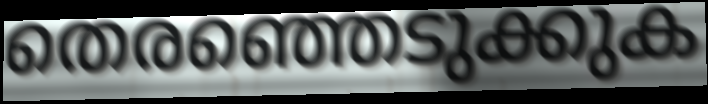
തെരഞ്ഞെടുക്കുക